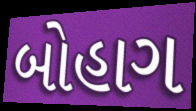
બોહાગ